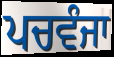
ਪਚਵੰਜਾ